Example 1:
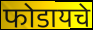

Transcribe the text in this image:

फोडायचे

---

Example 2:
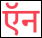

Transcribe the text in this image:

ऍन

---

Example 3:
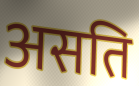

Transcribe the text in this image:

असति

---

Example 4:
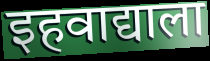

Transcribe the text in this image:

इहवाद्याला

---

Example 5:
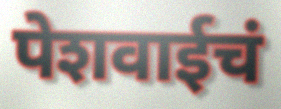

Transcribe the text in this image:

पेशवाईचं